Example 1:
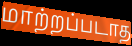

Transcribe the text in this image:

மாற்றப்படாத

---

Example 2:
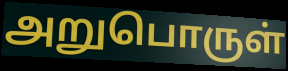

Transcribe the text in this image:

அறுபொருள்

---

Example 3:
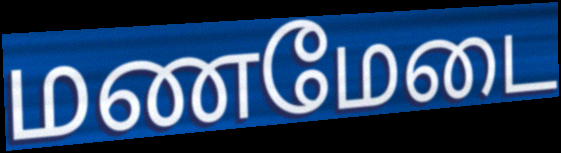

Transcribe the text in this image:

மணமேடை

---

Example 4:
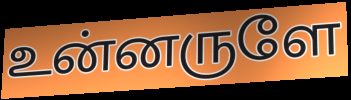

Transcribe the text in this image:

உன்னருளே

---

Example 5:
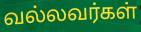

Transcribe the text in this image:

வல்லவர்கள்